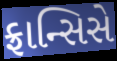
ફ્રાન્સિસે